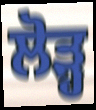
ਲੋੜ੍ਹ